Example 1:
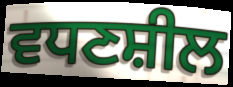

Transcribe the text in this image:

ਵਧਣਸ਼ੀਲ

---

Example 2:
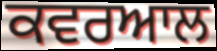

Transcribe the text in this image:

ਕਵਰਆਲ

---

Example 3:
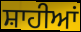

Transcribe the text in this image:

ਸ਼ਾਹੀਆਂ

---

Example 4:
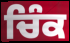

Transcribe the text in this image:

ਚਿੰਕ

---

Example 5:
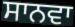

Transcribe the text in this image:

ਸਾਨਵਾ